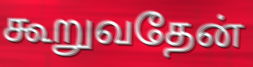
கூறுவதேன்